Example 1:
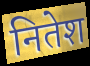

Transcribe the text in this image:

नितेश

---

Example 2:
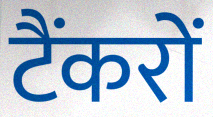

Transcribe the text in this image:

टैंकरों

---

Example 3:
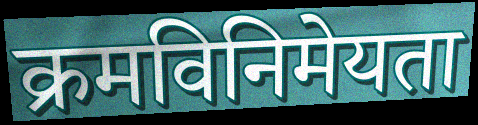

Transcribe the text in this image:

क्रमविनिमेयता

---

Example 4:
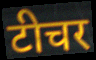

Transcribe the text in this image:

टीचर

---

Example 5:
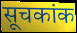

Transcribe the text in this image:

सूचकांक